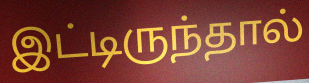
இட்டிருந்தால்